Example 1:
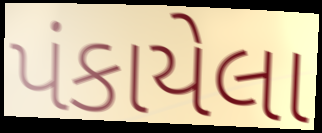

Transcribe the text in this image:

પંકાયેલા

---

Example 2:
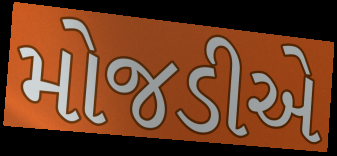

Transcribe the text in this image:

મોજડીએ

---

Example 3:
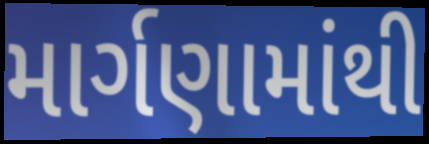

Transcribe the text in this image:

માર્ગણામાંથી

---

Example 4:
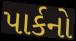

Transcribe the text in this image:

પાર્કનો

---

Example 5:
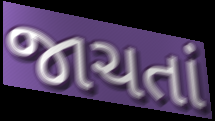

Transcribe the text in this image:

જાચતાં